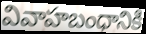
వివాహబంధానికి